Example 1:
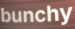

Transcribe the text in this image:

bunchy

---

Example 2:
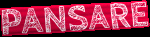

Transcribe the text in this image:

PANSARE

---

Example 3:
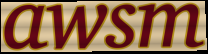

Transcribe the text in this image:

awsm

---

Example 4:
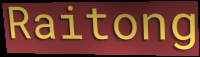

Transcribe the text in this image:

Raitong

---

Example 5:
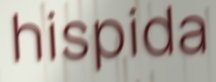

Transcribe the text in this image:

hispida